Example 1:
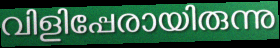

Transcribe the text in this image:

വിളിപ്പേരായിരുന്നു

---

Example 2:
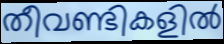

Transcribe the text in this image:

തീവണ്ടികളിൽ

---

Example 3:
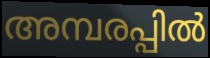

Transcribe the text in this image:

അമ്പരപ്പിൽ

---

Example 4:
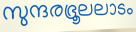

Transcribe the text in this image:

സുന്ദരഭ്രൂലലാടം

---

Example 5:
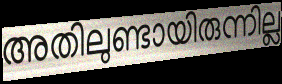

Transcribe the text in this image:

അതിലുണ്ടായിരുന്നില്ല